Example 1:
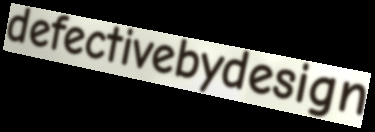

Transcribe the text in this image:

defectivebydesign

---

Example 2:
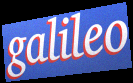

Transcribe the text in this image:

galileo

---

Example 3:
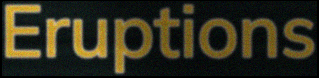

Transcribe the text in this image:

Eruptions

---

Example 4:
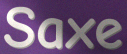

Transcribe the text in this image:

Saxe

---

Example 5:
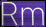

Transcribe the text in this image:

Rm